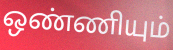
ஒண்ணியும்